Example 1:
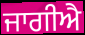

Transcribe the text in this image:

ਜਾਗੀਐ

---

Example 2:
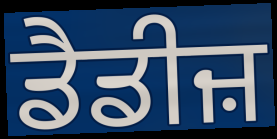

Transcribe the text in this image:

ਡੈਡੀਜ਼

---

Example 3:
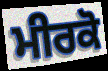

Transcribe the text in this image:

ਮੀਰਕੋ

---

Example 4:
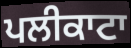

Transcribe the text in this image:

ਪਲੀਕਾਟਾ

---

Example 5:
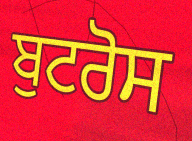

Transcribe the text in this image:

ਬੁਟਰੋਸ